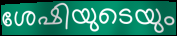
ശേഷിയുടെയും